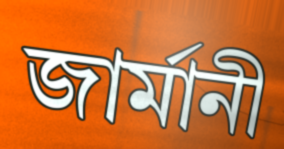
জাৰ্মানী